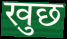
खुछ